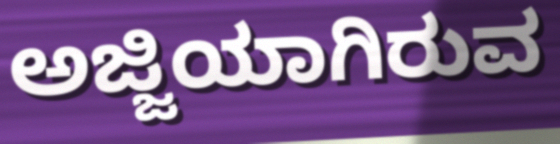
ಅಜ್ಜಿಯಾಗಿರುವ